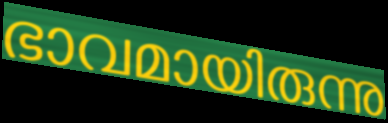
ഭാവമായിരുന്നു